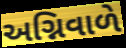
અગ્નિવાળે